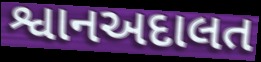
શ્વાનઅદાલત